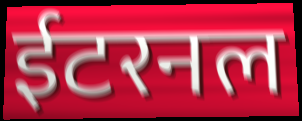
ईटरनल